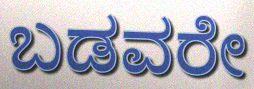
ಬಡವರೇ